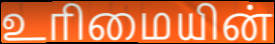
உரிமையின்